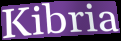
Kibria